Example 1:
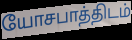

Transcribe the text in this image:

யோசபாத்திடம்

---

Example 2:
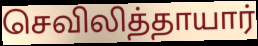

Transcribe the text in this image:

செவிலித்தாயார்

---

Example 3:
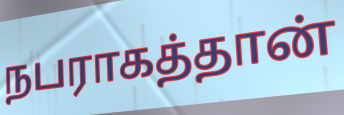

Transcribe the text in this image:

நபராகத்தான்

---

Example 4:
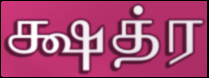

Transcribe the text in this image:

க்ஷத்ர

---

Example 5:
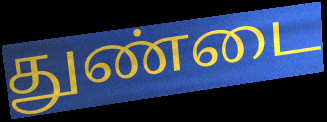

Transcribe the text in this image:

துண்டை